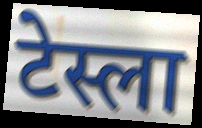
टेस्ला